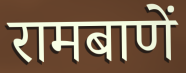
रामबाणें